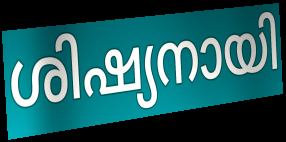
ശിഷ്യനായി